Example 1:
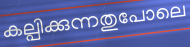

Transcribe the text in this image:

കല്പിക്കുന്നതുപോലെ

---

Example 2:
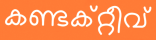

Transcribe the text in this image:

കണ്ടക്റ്റീവ്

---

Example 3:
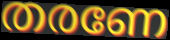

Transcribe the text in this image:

തരണേ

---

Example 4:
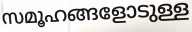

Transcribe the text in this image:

സമൂഹങ്ങളോടുള്ള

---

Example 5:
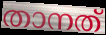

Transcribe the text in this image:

താനത്